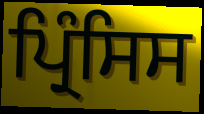
ਪ੍ਰਿੰਸਿਸ